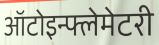
ऑटोइन्फ्लेमेटरी